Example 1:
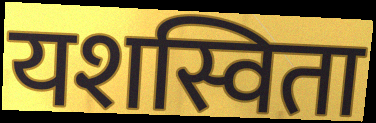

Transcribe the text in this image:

यशस्विता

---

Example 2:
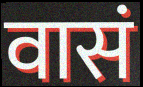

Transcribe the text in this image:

वासं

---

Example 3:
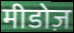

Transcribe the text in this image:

मीडोज़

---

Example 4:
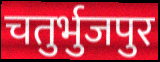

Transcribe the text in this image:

चतुर्भुजपुर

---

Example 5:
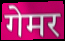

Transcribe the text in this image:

गेमर